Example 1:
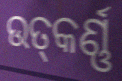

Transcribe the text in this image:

ଉତ୍‍କର୍ଣ୍ଣ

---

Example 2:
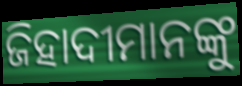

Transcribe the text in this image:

ଜିହାଦୀମାନଙ୍କୁ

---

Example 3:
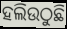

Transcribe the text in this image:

ହଲିଉଠୁଛି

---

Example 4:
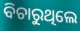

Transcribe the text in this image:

ବିଚାରୁଥିଲେ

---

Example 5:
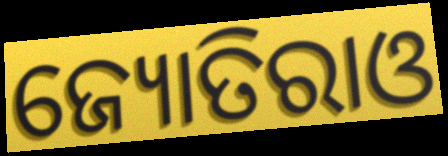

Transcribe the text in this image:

ଜ୍ୟୋତିରାଓ